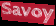
Savoy